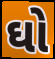
ઘો